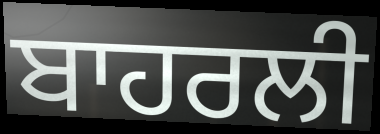
ਬਾਹਰਲੀ